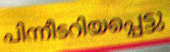
പിന്നീടറിയപ്പെട്ടു